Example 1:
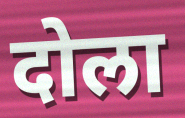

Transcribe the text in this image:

दोला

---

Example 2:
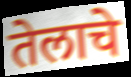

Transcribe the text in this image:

तेलाचे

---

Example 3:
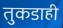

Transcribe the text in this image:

तुकडाही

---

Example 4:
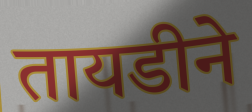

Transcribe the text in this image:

तायडीने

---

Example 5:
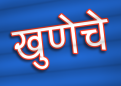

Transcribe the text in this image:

खुणेचे